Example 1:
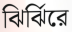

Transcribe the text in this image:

ঝির্ঝিরে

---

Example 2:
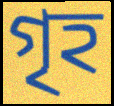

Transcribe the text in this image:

গৃহ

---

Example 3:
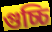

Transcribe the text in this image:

গুচ্চি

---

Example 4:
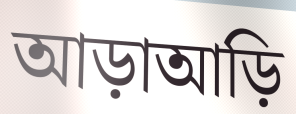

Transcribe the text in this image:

আড়াআড়ি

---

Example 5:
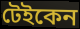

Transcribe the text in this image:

টেইকেন